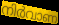
നിർവാണ